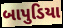
બાપુડિયા